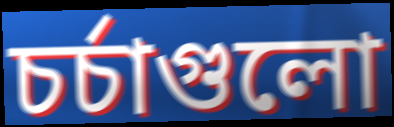
চর্চাগুলো